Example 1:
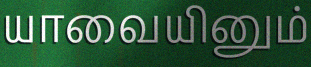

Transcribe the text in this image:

யாவையினும்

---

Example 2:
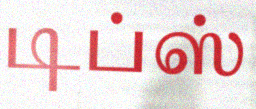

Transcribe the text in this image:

டிப்ஸ்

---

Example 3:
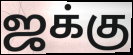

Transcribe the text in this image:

ஜக்கு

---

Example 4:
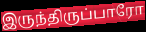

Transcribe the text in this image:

இருந்திருப்பாரோ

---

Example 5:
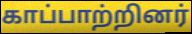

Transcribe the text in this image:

காப்பாற்றினர்